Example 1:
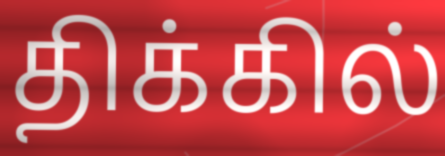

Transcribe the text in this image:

திக்கில்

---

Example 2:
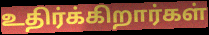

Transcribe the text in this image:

உதிர்க்கிறார்கள்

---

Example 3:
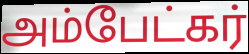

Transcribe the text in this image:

அம்பேட்கர்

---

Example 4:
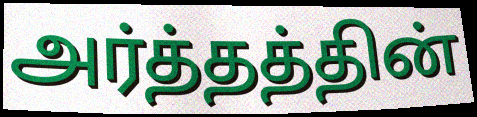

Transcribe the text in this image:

அர்த்தத்தின்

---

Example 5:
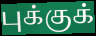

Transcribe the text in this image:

புக்குக்